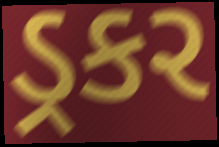
ડ્રકર